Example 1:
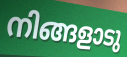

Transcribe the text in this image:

നിങ്ങളാടു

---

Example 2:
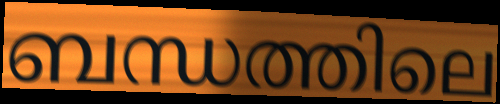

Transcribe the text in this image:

ബന്ധത്തിലെ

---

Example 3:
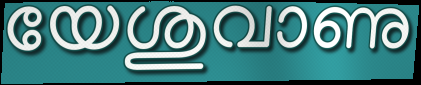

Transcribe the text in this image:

യേശുവാണു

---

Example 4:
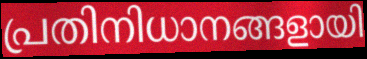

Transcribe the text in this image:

പ്രതിനിധാനങ്ങളായി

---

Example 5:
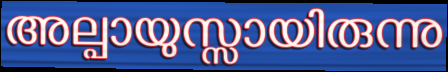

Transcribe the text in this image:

അല്പായുസ്സായിരുന്നു